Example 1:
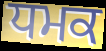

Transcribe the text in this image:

ਧਮਕ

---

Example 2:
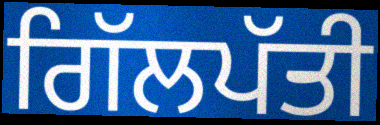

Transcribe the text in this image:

ਗਿੱਲਪੱਤੀ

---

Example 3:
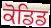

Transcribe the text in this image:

ਕੋਡਿਡ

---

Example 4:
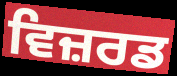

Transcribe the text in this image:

ਵਿਜ਼ਰਡ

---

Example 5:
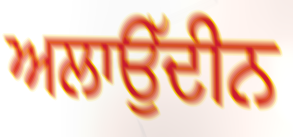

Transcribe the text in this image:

ਅਲਾਉੱਦੀਨ